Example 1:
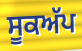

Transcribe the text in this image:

ਸੂਕਅੱਪ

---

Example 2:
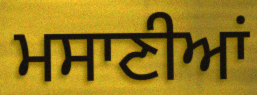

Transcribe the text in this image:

ਮਸਾਣੀਆਂ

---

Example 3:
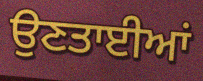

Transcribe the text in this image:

ਉਣਤਾਈਆਂ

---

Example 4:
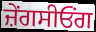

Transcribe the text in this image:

ਜ਼ੇਂਗਸੀਓਂਗ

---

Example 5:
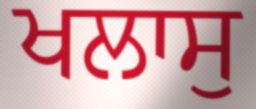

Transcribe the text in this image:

ਖਲਾਸੁ